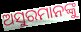
ଅସୁରମାନଙ୍କୁ